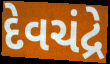
દેવચંદ્રે